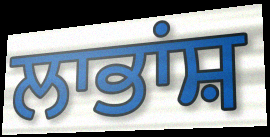
ਲਾਭਾਂਸ਼